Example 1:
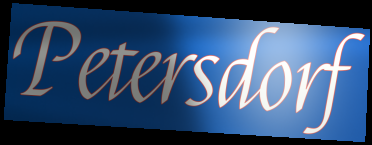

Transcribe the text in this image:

Petersdorf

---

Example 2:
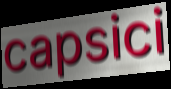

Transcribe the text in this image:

capsici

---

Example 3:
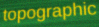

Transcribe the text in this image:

topographic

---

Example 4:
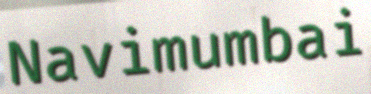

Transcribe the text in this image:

Navimumbai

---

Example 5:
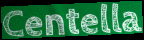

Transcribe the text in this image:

Centella